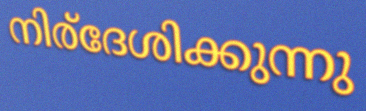
നിര്ദേശിക്കുന്നു